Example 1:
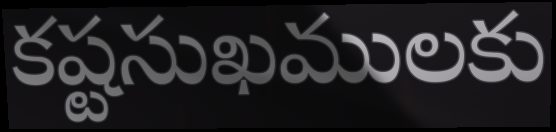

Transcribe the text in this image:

కష్టసుఖములకు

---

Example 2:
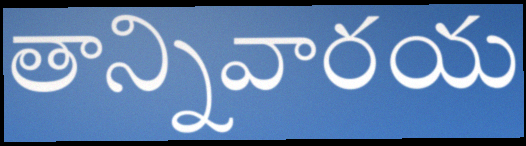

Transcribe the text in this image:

తాన్నివారయ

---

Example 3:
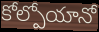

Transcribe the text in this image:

కోల్పోయానో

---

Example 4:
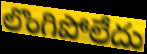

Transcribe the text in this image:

లొంగిపోలేదు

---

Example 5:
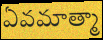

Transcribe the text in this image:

ఏవమాత్మా